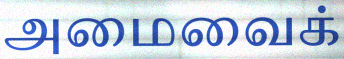
அமைவைக்